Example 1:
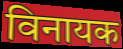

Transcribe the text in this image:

विनायक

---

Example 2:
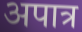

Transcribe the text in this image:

अपात्र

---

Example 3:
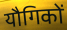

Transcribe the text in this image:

यौगिकों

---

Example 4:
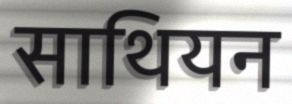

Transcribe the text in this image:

साथियन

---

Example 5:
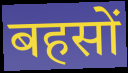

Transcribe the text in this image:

बहसों